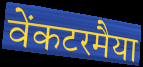
वेंकटरमैया